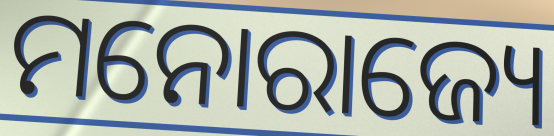
ମନୋରାଜ୍ୟେ